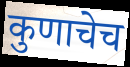
कुणाचेच